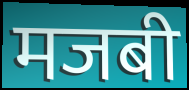
मजबी